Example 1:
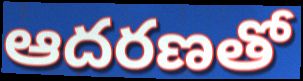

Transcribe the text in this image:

ఆదరణతో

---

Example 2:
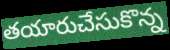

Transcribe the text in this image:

తయారుచేసుకొన్న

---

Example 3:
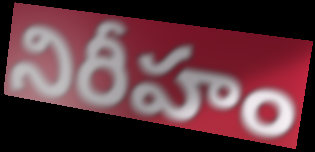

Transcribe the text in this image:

నిరీహం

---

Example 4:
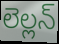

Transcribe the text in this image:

లెల్లన్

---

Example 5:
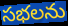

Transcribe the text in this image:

సభలను